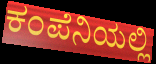
ಕಂಪೆನಿಯಲ್ಲಿ